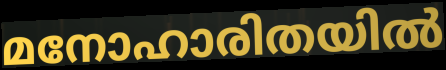
മനോഹാരിതയിൽ